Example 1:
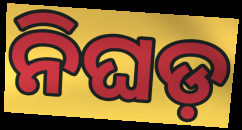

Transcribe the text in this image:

ନିଘଡ଼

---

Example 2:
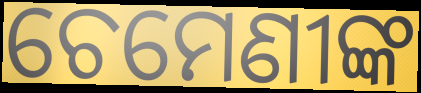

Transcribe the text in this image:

ଚେମେଣୀଙ୍କ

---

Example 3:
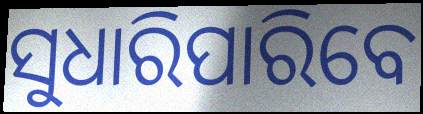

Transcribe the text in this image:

ସୁଧାରିପାରିବେ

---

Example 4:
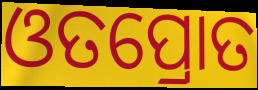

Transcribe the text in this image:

ଓତପ୍ରୋତ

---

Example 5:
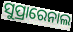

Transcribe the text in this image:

ସୁପ୍ରାରେନାଲ